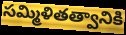
సమ్మిళితత్వానికి